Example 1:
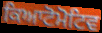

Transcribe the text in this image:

ਕਿਆਟੋਮੋਟਿਵ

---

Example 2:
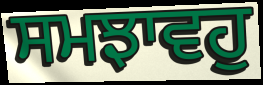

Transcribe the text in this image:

ਸਮਝਾਵਹੁ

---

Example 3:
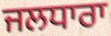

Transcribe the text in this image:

ਜਲਧਾਰਾ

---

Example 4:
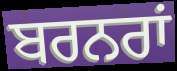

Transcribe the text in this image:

ਬਰਨਰਾਂ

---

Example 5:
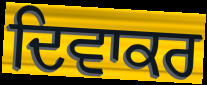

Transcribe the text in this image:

ਦਿਵਾਕਰ